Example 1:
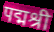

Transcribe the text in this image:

पद्मश्री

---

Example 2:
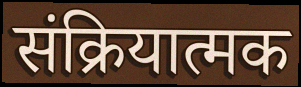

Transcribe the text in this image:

संक्रियात्मक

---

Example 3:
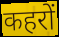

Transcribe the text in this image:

कहरों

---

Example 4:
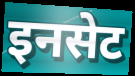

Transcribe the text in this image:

इनसेट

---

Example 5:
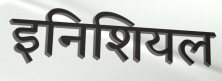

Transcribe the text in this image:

इनिशियल